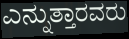
ಎನ್ನುತ್ತಾರವರು